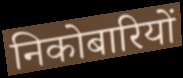
निकोबारियों